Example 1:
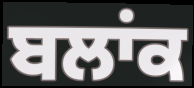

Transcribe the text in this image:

ਬਲਾਂਕ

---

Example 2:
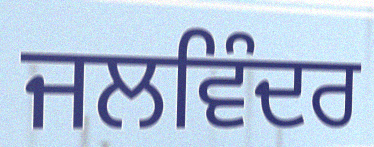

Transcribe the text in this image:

ਜਲਵਿੰਦਰ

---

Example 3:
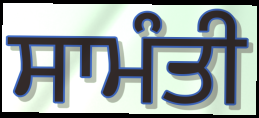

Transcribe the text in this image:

ਸਾਮੰਤੀ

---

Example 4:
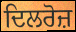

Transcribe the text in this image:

ਦਿਲਰੋਜ਼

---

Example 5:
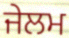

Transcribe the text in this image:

ਜੇਲਮ